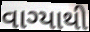
વાગ્યાથી